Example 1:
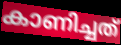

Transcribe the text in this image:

കാണിച്ചത്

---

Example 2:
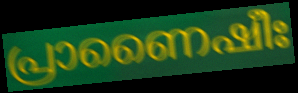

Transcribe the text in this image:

പ്രാണൈഷീഃ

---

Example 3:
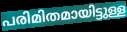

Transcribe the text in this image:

പരിമിതമായിട്ടുള്ള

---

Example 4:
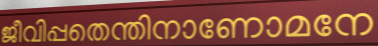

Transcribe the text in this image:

ജീവിപ്പതെന്തിനാണോമനേ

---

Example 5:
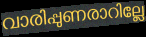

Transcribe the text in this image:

വാരിപ്പുണരാറില്ലേ